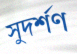
সুদর্শণ